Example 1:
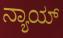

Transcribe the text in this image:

ನ್ಯಾಯ್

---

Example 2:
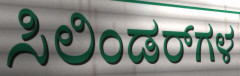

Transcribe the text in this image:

ಸಿಲಿಂಡರ್‌ಗಳ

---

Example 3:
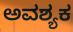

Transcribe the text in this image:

ಅವಶ್ಯಕ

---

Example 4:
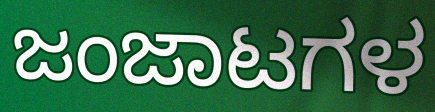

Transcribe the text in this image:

ಜಂಜಾಟಗಳ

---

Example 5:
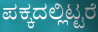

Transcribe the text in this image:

ಪಕ್ಕದಲ್ಲಿಟ್ಟರೆ